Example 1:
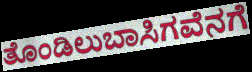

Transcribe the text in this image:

ತೊಂಡಿಲುಬಾಸಿಗವೆನಗೆ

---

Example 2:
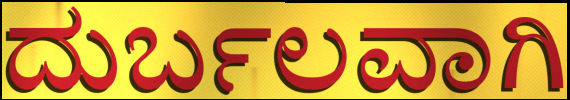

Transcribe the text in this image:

ದುರ್ಬಲವಾಗಿ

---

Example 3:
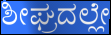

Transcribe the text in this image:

ಶೀಘ್ರದಲ್ಲೇ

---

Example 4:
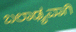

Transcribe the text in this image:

ಬಲಾಢ್ಯವಾಗಿ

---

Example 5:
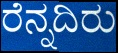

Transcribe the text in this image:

ರೆನ್ನದಿರು